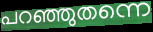
പറഞ്ഞുതന്നെ